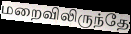
மறைவிலிருந்தே